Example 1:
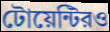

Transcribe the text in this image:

টোয়েন্টিরও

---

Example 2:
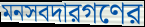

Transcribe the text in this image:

মনসবদারগণের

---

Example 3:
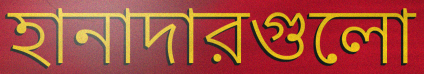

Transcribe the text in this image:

হানাদারগুলো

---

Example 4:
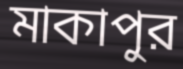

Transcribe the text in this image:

মাকাপুর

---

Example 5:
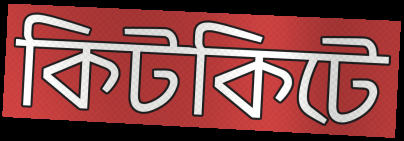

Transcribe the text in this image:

কিটকিটে